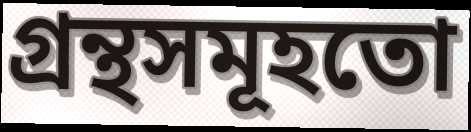
গ্ৰন্থসমূহতো